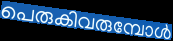
പെരുകിവരുമ്പോൾ